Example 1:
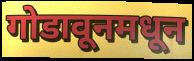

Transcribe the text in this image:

गोडावूनमधून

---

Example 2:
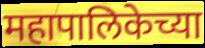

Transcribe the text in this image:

महापालिकेच्या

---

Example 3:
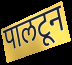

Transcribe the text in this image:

पालटून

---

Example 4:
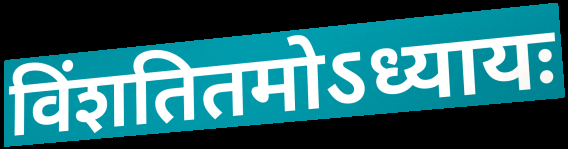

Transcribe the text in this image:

विंशतितमोऽध्यायः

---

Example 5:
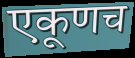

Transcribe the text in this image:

एकूणच